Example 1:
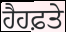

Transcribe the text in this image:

ਹੈਹਫ਼ਤੇ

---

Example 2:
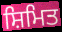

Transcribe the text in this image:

ਸ਼ਿਮਿਤ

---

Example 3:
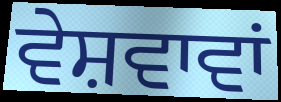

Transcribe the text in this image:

ਵੇਸ਼ਵਾਵਾਂ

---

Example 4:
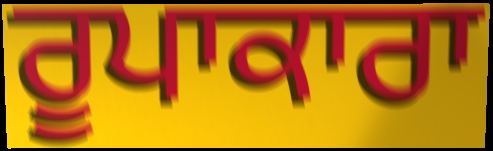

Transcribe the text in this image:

ਰੂਪਾਕਾਰਾ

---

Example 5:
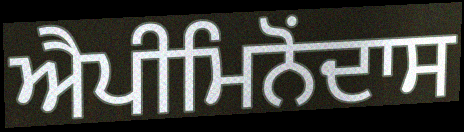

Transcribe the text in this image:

ਐਪੀਮਿਨੋਂਦਾਸ